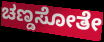
ಚಣ್ಡಸೋತೇ